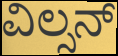
ವಿಲ್ಸನ್